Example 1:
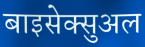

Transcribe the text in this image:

बाइसेक्सुअल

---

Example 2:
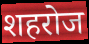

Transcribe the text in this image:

शहरोज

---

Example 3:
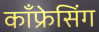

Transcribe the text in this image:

कॉंफ्रेसिंग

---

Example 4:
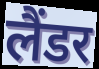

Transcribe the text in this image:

लैंडर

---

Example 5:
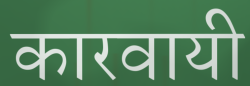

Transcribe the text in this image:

कारवायी